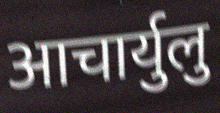
आचार्युलु